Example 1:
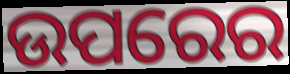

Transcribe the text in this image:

ଉପରେର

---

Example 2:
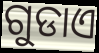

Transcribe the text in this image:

ଗୁଡାଏ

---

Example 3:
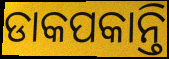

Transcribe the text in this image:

ଡାକପକାନ୍ତି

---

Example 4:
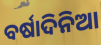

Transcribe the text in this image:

ବର୍ଷାଦିନିଆ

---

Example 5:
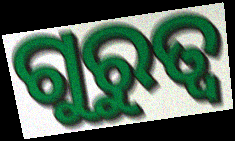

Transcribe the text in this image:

ଗୁରୁତ୍ୱ